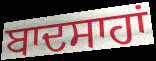
ਬਾਦਸਾਹਾਂ